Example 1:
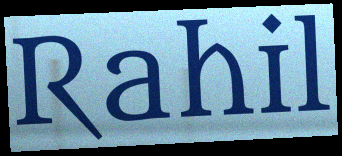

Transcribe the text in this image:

Rahil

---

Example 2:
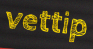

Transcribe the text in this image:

vettip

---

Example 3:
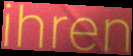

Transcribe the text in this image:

ihren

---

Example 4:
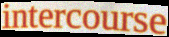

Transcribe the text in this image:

intercourse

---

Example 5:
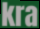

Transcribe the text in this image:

kra